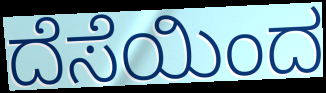
ದೆಸೆಯಿಂದ